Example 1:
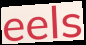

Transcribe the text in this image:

eels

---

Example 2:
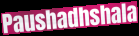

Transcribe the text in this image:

Paushadhshala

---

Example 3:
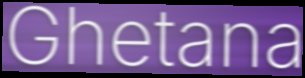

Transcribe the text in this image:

Ghetana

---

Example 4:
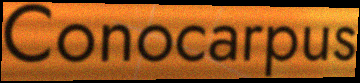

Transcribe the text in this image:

Conocarpus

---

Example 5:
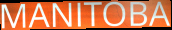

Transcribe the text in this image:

MANITOBA